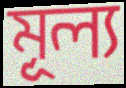
মূল্য